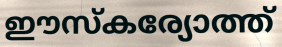
ഈസ്കര്യോത്ത്